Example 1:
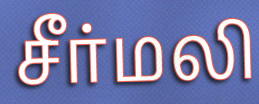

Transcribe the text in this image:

சீர்மலி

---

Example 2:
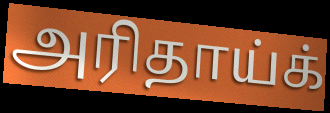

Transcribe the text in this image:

அரிதாய்க்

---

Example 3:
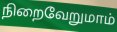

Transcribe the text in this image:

நிறைவேறுமாம்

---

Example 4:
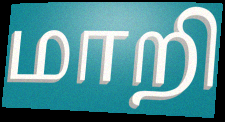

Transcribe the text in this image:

மாறி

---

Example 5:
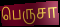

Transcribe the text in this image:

பெருசா